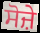
ਸੋਜ਼ੇ